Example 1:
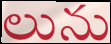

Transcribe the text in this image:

లును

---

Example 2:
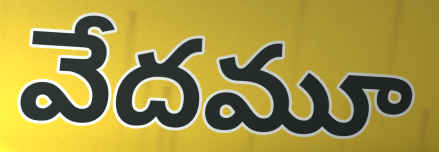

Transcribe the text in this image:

వేదమూ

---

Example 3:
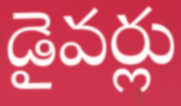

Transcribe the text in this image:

డైవర్లు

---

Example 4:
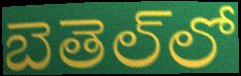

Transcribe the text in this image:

బెతెల్‌లో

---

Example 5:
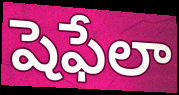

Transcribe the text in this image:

షెఫేలా